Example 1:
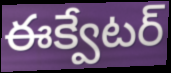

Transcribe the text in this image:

ఈక్వేటర్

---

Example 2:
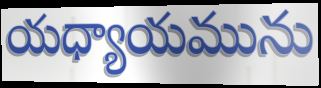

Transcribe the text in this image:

యధ్యాయమును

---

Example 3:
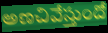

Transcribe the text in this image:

అణచివేస్తుందో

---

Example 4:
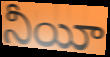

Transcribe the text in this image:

నీయీ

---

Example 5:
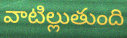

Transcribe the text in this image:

వాటిల్లుతుంది